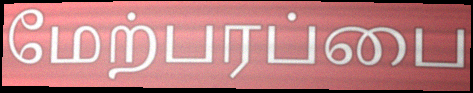
மேற்பரப்பை